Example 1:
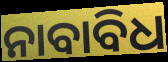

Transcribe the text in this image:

ନାବାବିଧ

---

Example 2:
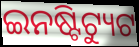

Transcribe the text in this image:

ଇନଷ୍ଟିଟ୍ୟୁଟ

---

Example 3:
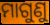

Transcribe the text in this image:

ମାଗୁଣୁ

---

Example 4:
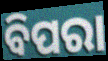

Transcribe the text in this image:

ବିପରା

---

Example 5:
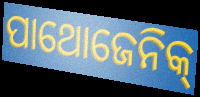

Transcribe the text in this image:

ପାଥୋଜେନିକ୍